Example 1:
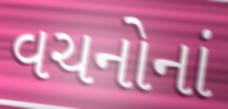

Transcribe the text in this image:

વચનોનાં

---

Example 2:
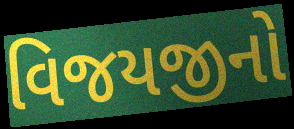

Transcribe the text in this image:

વિજયજીનો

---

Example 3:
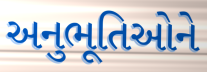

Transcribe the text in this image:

અનુભૂતિઓને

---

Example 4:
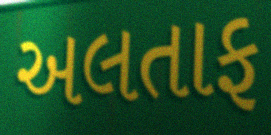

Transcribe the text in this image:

અલતાફ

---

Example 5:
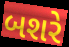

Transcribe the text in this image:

બશરે